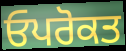
ਓਪਰੋਕਤ